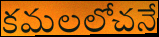
కమలలోచనే